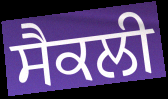
ਸੈਕਲੀ